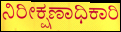
ನಿರೀಕ್ಷಣಾಧಿಕಾರಿ